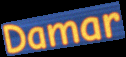
Damar